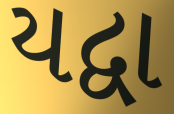
યદ્વા